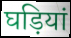
घड़ियां